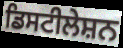
ਡਿਸਟੀਲੇਸ਼ਨ